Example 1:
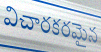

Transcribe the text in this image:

విచారకరమైన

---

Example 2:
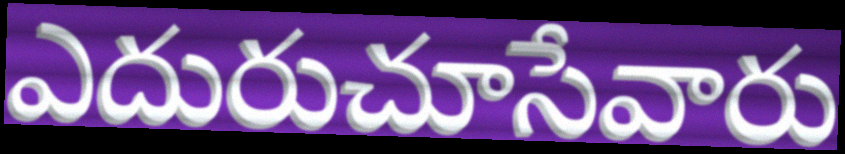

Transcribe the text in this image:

ఎదురుచూసేవారు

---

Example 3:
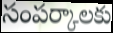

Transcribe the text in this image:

సంపర్కాలకు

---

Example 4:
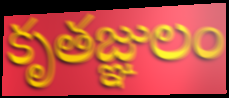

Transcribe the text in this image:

కృతజ్ఞులం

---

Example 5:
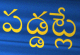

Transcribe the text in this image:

పడ్డట్లే